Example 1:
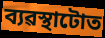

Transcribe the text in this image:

ব্যৱস্থাটোত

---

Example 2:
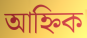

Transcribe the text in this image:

আহ্নিক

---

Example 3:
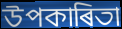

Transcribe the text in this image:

উপকাৰিতা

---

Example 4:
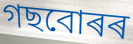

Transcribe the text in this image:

গছবোৰৰ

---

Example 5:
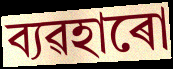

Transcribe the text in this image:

ব্যৱহাৰো